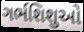
ગર્ભશિશુઓ